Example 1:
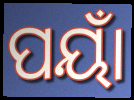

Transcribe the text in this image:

ପୟାଁ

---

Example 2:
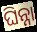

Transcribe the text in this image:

ଘିନ୍ନା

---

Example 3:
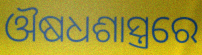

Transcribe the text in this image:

ଔଷଧଶାସ୍ତ୍ରରେ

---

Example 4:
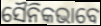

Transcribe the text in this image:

ସୈନିକଭାବେ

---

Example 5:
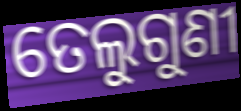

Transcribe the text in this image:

ତେଲୁଗୁଣୀ